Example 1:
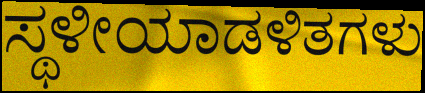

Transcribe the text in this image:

ಸ್ಥಳೀಯಾಡಳಿತಗಳು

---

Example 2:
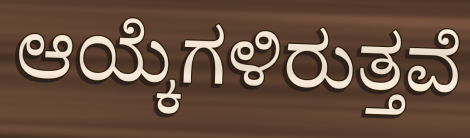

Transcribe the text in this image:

ಆಯ್ಕೆಗಳಿರುತ್ತವೆ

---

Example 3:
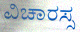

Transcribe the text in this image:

ವಿಚಾರಸ್ಸ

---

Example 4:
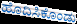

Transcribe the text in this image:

ಹೊದಿಸಿಕೊಂಡು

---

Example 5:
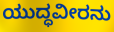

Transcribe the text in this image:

ಯುದ್ಧವೀರನು